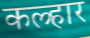
कल्हार